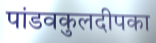
पांडवकुलदीपका